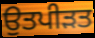
ਉਤਪੀੜਤ